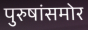
पुरुषांसमोर